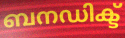
ബനഡിക്ട്